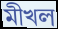
মীখল